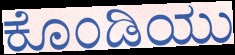
ಕೊಂಡಿಯು